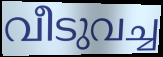
വീടുവച്ച